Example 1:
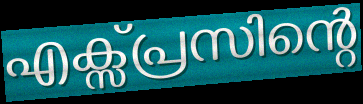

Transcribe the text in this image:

എക്സ്പ്രസിന്റെ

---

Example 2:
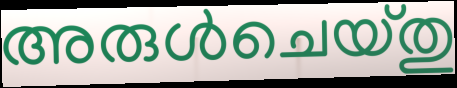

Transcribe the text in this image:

അരുൾചെയ്തു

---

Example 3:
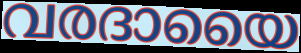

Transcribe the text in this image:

വരദായൈ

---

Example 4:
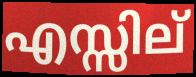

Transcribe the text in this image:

എസ്സില്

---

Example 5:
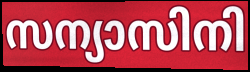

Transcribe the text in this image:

സന്യാസിനി